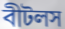
বীটলস